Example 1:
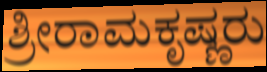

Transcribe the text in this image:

ಶ್ರೀರಾಮಕೃಷ್ಣರು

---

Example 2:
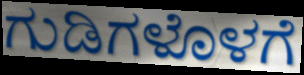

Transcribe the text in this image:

ಗುಡಿಗಳೊಳಗೆ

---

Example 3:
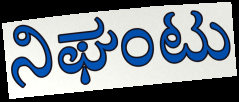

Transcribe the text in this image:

ನಿಘಂಟು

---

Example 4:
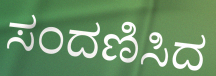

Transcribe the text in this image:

ಸಂದಣಿಸಿದ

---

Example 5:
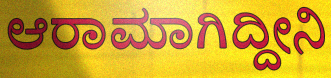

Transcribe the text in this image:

ಆರಾಮಾಗಿದ್ದೀನಿ